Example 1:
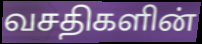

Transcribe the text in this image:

வசதிகளின்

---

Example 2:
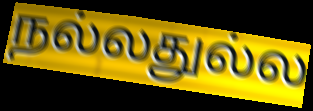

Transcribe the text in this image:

நல்லதுல்ல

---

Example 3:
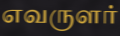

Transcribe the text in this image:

எவருளர்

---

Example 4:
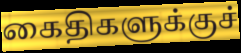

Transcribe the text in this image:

கைதிகளுக்குச்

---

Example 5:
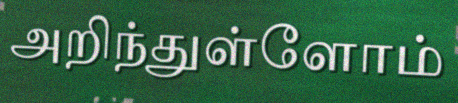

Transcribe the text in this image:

அறிந்துள்ளோம்